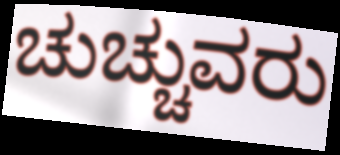
ಚುಚ್ಚುವರು